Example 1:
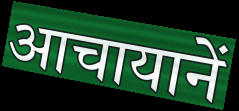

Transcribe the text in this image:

आचायानें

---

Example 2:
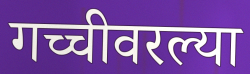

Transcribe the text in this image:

गच्चीवरल्या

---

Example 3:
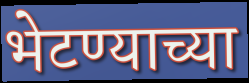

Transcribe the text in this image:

भेटण्याच्या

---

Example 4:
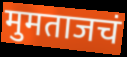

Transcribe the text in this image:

मुमताजचं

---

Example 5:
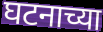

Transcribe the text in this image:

घटनाच्या